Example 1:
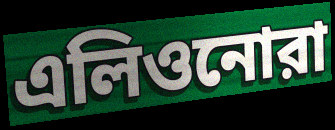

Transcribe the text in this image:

এলিওনোরা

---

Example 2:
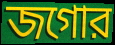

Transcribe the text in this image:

জগোর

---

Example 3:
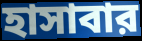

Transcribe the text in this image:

হাসাবার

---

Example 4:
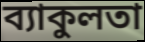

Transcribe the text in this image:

ব্যাকুলতা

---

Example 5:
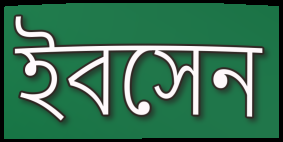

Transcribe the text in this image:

ইবসেন